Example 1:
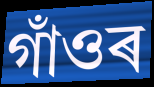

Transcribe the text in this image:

গাঁওৰ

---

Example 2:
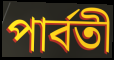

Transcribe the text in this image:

পাৰ্বতী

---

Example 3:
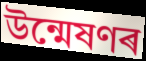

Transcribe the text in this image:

উন্মেষণৰ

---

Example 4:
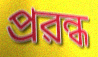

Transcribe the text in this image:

প্ৰৱন্ধ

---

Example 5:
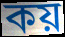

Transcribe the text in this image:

কয়